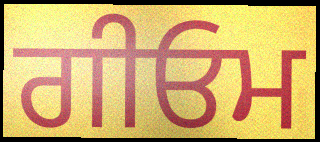
ਗੀਓਮ